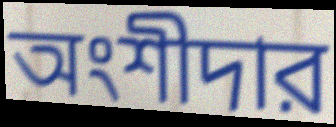
অংশীদার